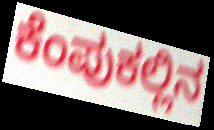
ಕೆಂಪುಕಲ್ಲಿನ